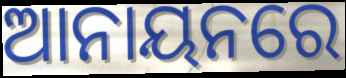
ଆନାୟନରେ